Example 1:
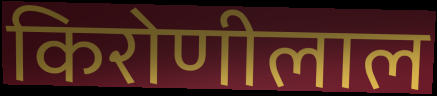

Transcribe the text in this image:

किरोणीलाल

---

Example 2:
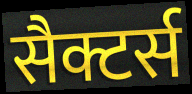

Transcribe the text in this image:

सैक्टर्स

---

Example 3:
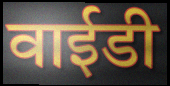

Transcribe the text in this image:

वाईडी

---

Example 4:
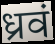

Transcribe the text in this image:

ध्रवं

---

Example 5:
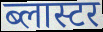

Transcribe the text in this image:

ब्लास्टर